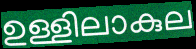
ഉള്ളിലാകുല